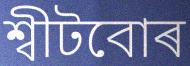
শ্বীটবোৰ